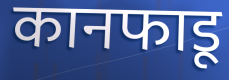
कानफाडू